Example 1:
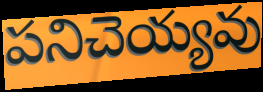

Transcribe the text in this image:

పనిచెయ్యవు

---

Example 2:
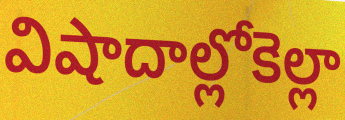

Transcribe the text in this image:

విషాదాల్లోకెల్లా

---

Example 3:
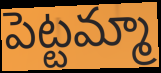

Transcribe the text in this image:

పెట్టమ్మా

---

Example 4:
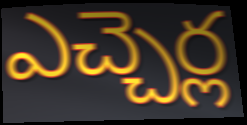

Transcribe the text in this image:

ఎచ్చెర్ల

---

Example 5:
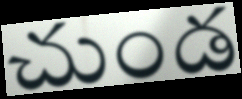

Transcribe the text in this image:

చుండ